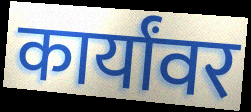
कार्यांवर